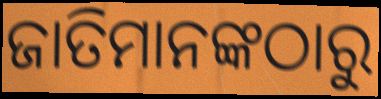
ଜାତିମାନଙ୍କଠାରୁ